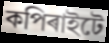
কপিৰাইটে